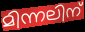
മിന്നലിന്